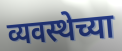
व्यवस्थेच्या